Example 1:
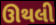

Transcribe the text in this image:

ઊથલી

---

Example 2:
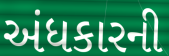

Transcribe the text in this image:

અંધકારની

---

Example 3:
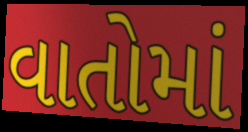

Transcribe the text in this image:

વાતોમાં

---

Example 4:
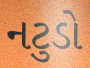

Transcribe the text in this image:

નટુડો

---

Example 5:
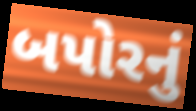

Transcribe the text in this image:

બપોરનું